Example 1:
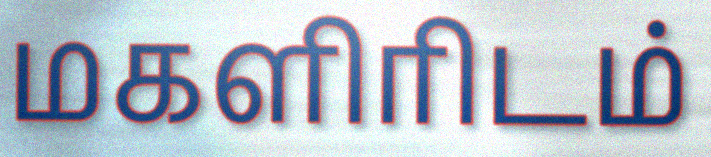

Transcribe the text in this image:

மகளிரிடம்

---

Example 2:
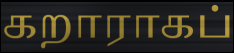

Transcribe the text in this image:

கறாராகப்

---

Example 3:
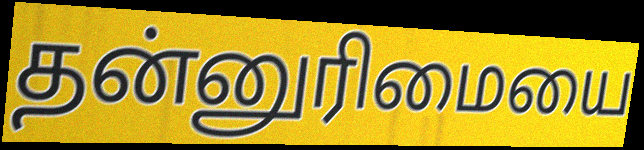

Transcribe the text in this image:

தன்னுரிமையை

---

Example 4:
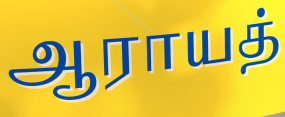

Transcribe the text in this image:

ஆராயத்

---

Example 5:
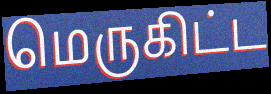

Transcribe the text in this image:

மெருகிட்ட